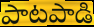
పాటపాడి